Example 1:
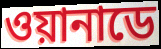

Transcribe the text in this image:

ওয়ানাডে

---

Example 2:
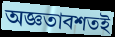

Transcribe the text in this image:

অজ্ঞতাবশতই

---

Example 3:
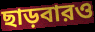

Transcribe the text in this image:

ছাড়বারও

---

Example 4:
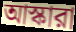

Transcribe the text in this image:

আস্কারা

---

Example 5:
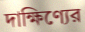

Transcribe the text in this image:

দাক্ষিণ্যের